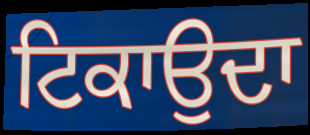
ਟਿਕਾਉਦਾ